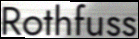
Rothfuss